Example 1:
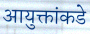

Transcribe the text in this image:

आयुक्तांकडे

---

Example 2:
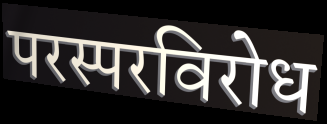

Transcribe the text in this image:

परस्परविरोध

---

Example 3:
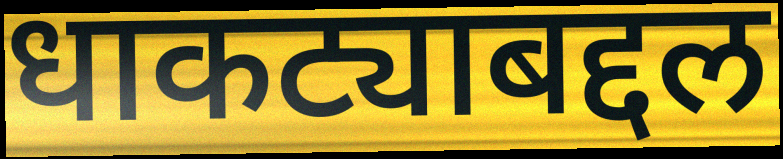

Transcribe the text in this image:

धाकट्याबद्दल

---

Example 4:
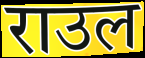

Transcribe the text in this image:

राउल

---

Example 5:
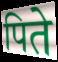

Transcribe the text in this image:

पिते